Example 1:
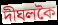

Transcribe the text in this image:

দীঘলকৈ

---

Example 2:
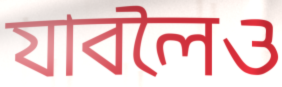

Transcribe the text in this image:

যাবলৈও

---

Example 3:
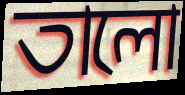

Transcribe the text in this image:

তালো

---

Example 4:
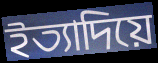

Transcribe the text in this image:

ইত্যাদিয়ে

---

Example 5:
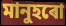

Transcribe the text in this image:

মানুহৰো